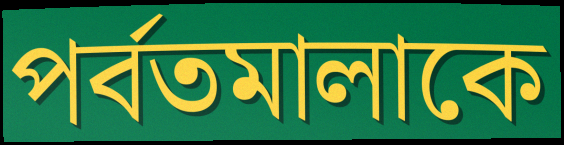
পর্বতমালাকে